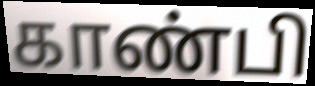
காண்பி